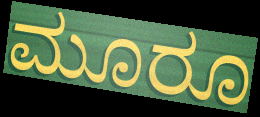
ಮೂರೂ